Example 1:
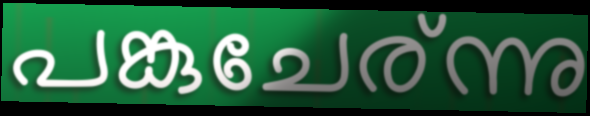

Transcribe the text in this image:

പങ്കുചേര്ന്നു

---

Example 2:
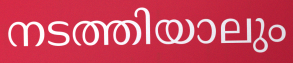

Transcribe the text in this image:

നടത്തിയാലും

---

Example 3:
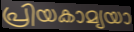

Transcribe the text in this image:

പ്രിയകാമ്യയാ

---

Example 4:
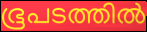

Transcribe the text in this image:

ഭൂപടത്തിൽ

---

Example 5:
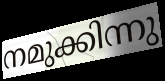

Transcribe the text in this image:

നമുക്കിന്നു